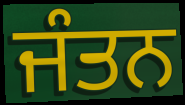
ਜੰਤਨ